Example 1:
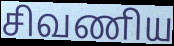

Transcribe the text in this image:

சிவணிய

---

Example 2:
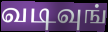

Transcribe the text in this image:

வடிவுங்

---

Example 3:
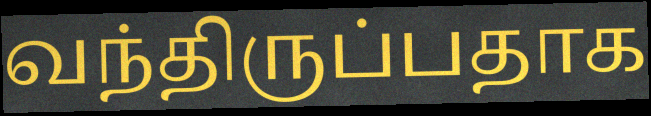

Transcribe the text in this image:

வந்திருப்பதாக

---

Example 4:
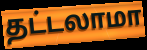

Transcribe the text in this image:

தட்டலாமா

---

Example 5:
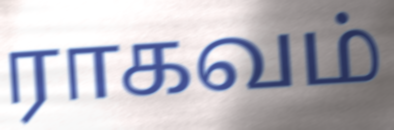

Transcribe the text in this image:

ராகவம்